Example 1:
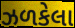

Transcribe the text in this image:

ઝળકેલા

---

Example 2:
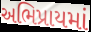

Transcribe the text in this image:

અભિપ્રાયમાં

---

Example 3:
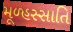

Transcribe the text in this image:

મૂળ્હસ્સાતિ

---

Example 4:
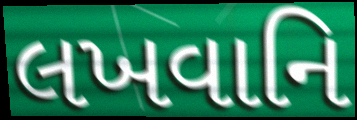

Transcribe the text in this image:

લખવાનિ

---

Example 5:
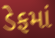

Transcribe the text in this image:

ડેફમાં